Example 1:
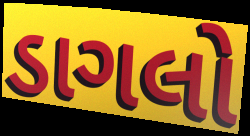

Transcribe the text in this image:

ડાગલો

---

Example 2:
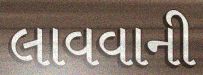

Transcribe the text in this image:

લાવવાની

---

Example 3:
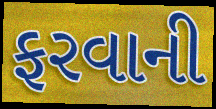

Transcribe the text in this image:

ફરવાની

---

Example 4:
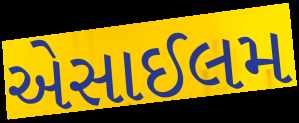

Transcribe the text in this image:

એસાઈલમ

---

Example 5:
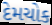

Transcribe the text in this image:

દેમચોક